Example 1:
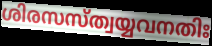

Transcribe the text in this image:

ശിരസസ്ത്വയ്യവനതിഃ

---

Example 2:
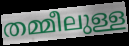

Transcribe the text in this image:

തമ്മീലുള്ള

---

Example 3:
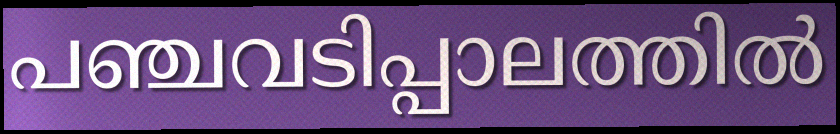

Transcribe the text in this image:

പഞ്ചവടിപ്പാലത്തിൽ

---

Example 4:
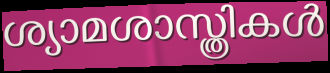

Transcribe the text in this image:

ശ്യാമശാസ്ത്രികൾ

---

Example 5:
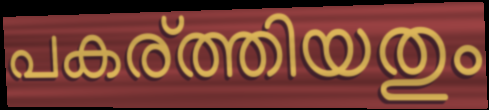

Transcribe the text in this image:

പകര്ത്തിയതും